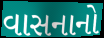
વાસનાનો